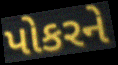
પોકરને